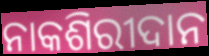
ନାକଶିରୀଦାନ